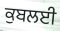
ਕੁਬਲਈ